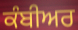
ਕੰਬੀਅਰ